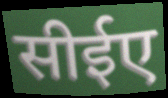
सीईए